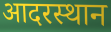
आदरस्थान